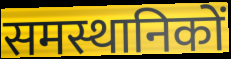
समस्थानिकों